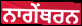
ਨਾਗੇਂਥਰਨ